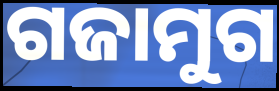
ଗଜାମୁଗ